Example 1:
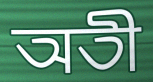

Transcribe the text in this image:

অতী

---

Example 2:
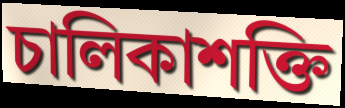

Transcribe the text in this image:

চালিকাশক্তি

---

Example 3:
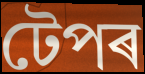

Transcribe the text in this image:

টেপৰ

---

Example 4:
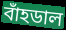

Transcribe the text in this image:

বাঁহডাল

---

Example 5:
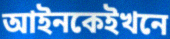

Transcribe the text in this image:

আইনকেইখনে